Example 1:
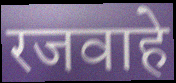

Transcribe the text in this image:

रजवाहे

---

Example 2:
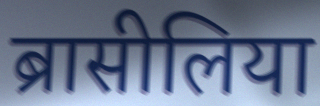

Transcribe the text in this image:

ब्रासीलिया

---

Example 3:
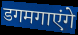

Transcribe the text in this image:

डगमगाएंगे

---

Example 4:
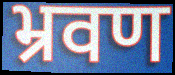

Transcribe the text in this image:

भ्रवण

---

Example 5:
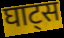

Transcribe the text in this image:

घाट्स